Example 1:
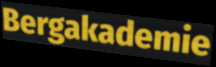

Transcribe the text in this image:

Bergakademie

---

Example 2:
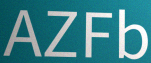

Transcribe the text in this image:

AZFb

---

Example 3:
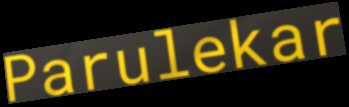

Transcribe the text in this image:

Parulekar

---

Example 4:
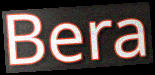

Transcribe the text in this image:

Bera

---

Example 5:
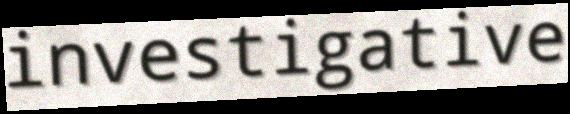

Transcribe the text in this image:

investigative